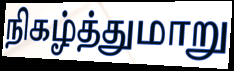
நிகழ்த்துமாறு